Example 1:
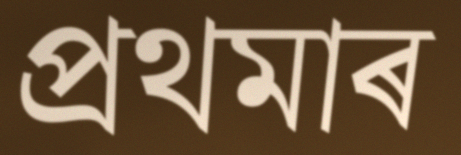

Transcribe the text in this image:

প্ৰথমাৰ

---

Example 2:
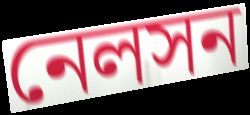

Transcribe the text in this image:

নেলসন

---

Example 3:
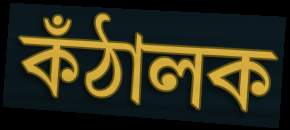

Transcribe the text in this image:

কঁঠালক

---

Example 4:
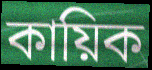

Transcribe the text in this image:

কায়িক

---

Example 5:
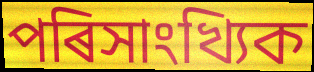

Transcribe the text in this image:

পৰিসাংখ্যিক